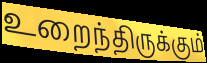
உறைந்திருக்கும்